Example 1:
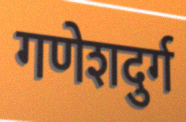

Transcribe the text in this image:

गणेशदुर्ग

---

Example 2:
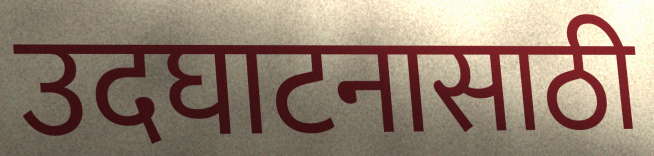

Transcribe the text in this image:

उदघाटनासाठी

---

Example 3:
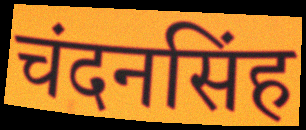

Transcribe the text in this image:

चंदनसिंह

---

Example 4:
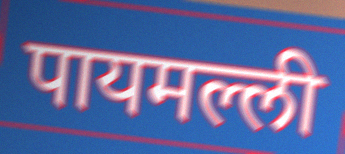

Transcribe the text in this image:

पायमल्ली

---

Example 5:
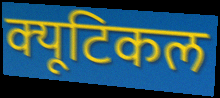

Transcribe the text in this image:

क्यूटिकल